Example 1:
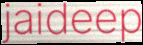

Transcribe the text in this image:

jaideep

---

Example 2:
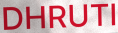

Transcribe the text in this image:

DHRUTI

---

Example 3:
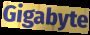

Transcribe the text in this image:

Gigabyte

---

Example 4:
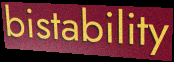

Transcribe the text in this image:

bistability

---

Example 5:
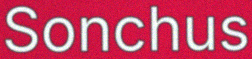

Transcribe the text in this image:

Sonchus